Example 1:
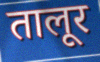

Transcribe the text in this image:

तालूर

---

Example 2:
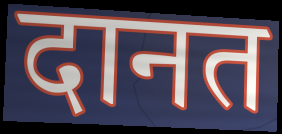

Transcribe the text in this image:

दानत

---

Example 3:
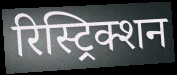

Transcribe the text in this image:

रिस्ट्रिक्शन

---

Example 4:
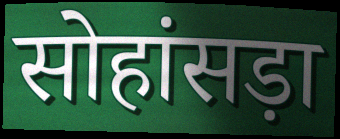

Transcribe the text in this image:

सोहांसड़ा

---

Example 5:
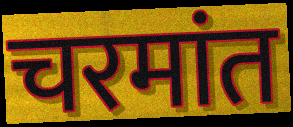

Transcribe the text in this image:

चरमांत